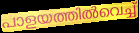
പാളയത്തിൽവെച്ച്